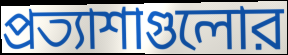
প্রত্যাশাগুলোর